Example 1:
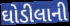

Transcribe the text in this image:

ઘોડીલાની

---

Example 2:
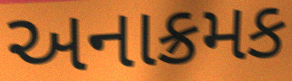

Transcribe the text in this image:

અનાક્રમક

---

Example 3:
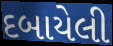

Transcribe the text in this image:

દબાયેલી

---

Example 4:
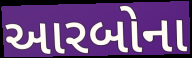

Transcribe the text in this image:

આરબોના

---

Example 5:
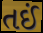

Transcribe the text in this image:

તઈં